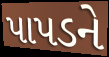
પાપડને